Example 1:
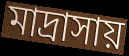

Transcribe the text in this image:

মাদ্রাসায়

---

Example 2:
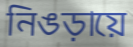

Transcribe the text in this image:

নিঙড়ায়ে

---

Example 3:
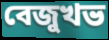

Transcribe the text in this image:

বেজুখভ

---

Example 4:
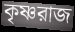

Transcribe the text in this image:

কৃষ্ণরাজ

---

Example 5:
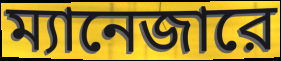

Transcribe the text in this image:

ম্যানেজারে